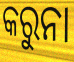
କରୁନା